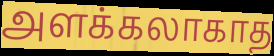
அளக்கலாகாத